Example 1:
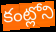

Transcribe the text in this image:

కంట్లోని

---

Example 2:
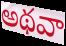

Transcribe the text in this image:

అథవా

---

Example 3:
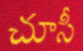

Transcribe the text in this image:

చూసీ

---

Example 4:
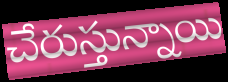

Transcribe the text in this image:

చేరుస్తున్నాయి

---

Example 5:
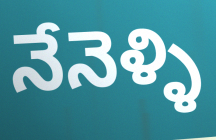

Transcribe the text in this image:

నేనెళ్ళి